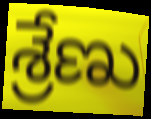
శ్రేణు